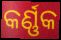
କର୍ଣ୍ଣକ